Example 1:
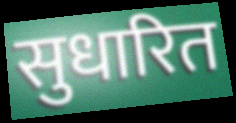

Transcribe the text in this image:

सुधारित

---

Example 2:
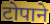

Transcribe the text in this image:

टोपाने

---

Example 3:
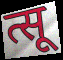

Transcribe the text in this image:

त्सू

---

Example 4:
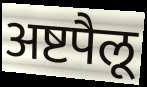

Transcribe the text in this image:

अष्टपैलू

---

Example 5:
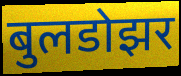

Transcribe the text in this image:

बुलडोझर